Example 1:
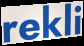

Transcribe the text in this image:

rekli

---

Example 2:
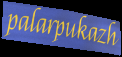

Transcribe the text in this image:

palarpukazh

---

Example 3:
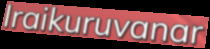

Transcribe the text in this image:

Iraikuruvanar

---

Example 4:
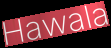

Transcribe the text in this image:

Hawala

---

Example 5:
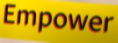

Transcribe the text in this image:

Empower